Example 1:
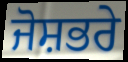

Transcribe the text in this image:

ਜੋਸ਼ਭਰੇ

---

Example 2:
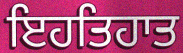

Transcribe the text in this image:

ਇਹਤਿਹਾਤ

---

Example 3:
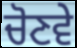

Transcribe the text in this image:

ਚੋਣਵੇ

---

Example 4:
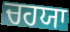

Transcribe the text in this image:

ਚਹਯਾ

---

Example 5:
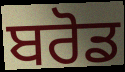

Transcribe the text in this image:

ਬਰੋਡ